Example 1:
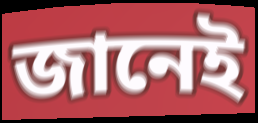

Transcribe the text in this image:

জানেই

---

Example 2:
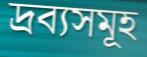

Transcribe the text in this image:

দ্ৰব্যসমূহ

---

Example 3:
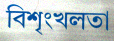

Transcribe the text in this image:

বিশৃংখলতা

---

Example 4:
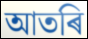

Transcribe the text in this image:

আতৰি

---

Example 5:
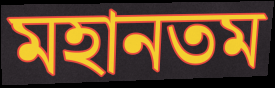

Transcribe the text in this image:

মহানতম